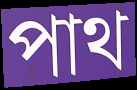
পাথ